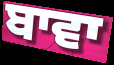
ਬਾਵਾ